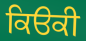
ਕਿੳਕੀ